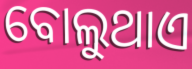
ବୋଲୁଥାଏ